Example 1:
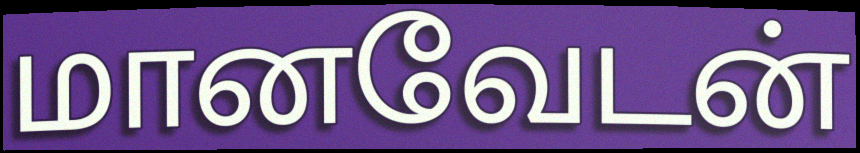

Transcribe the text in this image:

மானவேடன்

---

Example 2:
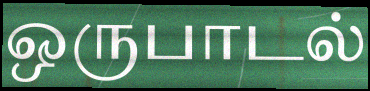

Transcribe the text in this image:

ஒருபாடல்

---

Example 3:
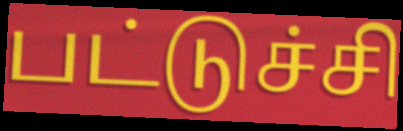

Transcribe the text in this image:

பட்டுச்சி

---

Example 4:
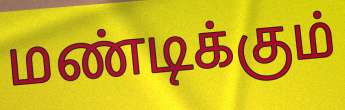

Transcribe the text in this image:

மண்டிக்கும்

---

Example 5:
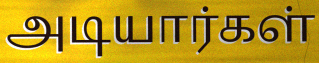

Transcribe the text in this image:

அடியார்கள்